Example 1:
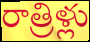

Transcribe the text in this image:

రాత్రిళ్లు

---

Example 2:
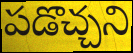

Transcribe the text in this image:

పడొచ్చని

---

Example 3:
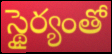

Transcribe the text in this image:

స్థైర్యంతో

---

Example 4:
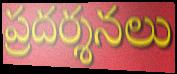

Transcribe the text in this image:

ప్రదర్శనలు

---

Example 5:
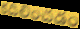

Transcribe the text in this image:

కదిలించడం